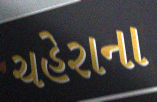
ચહેરાના